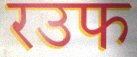
रउफ